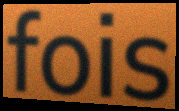
fois